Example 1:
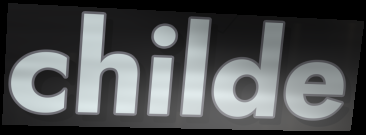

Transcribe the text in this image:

childe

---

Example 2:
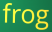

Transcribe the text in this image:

frog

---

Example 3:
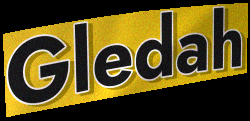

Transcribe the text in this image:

Gledah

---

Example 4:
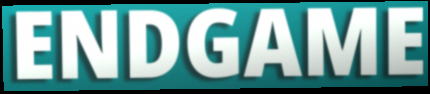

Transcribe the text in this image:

ENDGAME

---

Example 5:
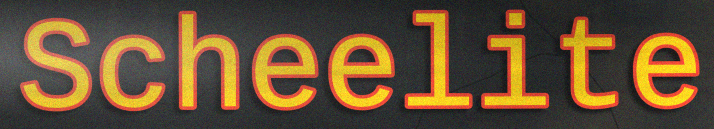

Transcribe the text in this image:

Scheelite